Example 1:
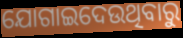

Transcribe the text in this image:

ଯୋଗାଇଦେଉଥିବାରୁ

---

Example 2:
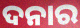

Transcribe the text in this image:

ଦନାର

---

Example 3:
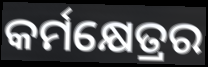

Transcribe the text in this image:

କର୍ମକ୍ଷେତ୍ରର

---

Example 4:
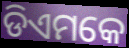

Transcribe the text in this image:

ଡିଏମକେ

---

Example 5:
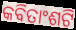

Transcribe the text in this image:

କବିତାଂଶଟି